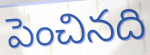
పెంచినది